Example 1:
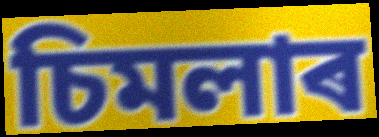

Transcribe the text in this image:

চিমলাৰ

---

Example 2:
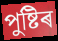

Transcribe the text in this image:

পুষ্টিৰ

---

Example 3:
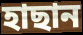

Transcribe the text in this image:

হাছান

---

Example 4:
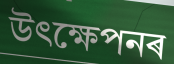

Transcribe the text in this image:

উৎক্ষেপনৰ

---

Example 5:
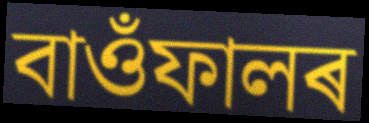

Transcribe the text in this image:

বাওঁফালৰ